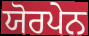
ਯੋਰਪੇਨ